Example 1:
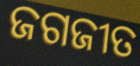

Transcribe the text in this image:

ଜଗଜୀତ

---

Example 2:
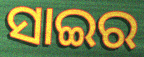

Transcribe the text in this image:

ସାଇର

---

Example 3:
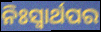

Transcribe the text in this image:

ନିଃସ୍ୱାର୍ଥପର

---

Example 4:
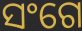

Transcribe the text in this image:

ସଂଗେ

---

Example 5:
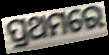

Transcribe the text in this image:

ପ୍ରଥମରେ